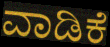
ವಾಡಿಕೆ